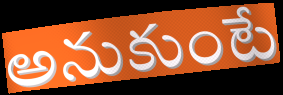
అనుకుంటే